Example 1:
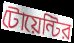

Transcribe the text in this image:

টোয়েন্টির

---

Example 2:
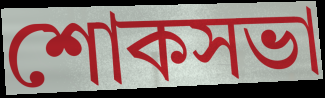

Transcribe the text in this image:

শোকসভা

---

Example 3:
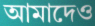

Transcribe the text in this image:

আমাদেও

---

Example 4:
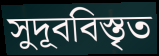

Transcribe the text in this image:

সুদূববিস্তৃত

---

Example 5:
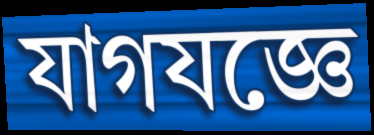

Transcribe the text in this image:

যাগযজ্ঞে